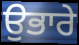
ਉਭਾਰੇ